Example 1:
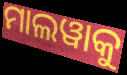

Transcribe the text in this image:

ମାଲୱାକୁ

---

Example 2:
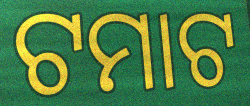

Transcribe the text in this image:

ଟମାଟ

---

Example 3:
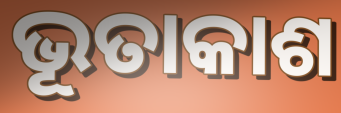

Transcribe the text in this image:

ଭୂତାକାଶ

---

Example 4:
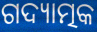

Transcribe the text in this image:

ଗଦ୍ୟାତ୍ମକ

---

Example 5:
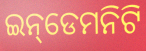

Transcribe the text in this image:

ଇନ୍‌ଡେମନିଟି